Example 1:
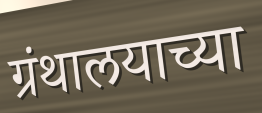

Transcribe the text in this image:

ग्रंथालयाच्या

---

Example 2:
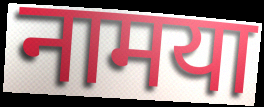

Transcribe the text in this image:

नामया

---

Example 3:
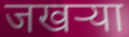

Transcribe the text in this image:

जखऱ्या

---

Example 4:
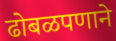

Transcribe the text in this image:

ढोबळपणाने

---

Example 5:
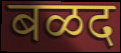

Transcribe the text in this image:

बळद